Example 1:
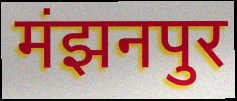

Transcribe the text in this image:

मंझनपुर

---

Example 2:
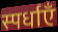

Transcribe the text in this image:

स्पर्धाएँ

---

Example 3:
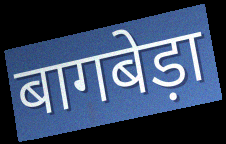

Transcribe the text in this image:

बागबेड़ा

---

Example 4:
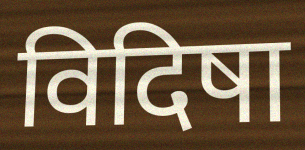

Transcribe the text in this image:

विदिषा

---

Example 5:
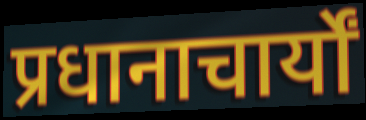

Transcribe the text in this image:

प्रधानाचार्यों